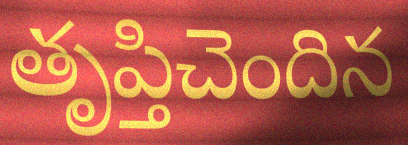
తృప్తిచెందిన